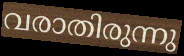
വരാതിരുന്നു